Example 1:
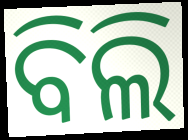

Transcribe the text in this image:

ବିଲି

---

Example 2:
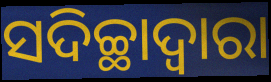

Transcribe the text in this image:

ସଦିଚ୍ଛାଦ୍ୱାରା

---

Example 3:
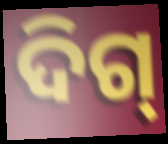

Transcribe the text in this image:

ଦିଗ୍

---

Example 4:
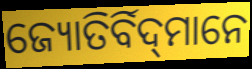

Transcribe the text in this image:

ଜ୍ୟୋତିର୍ବିଦ୍‌ମାନେ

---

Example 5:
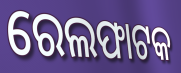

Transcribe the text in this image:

ରେଲଫାଟକ